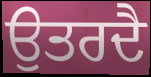
ਉਤਰਦੈ